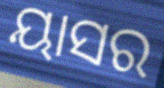
ୟାସର